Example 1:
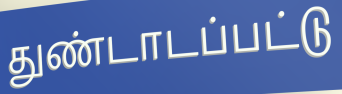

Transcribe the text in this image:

துண்டாடப்பட்டு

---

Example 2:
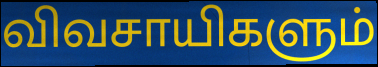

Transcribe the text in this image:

விவசாயிகளும்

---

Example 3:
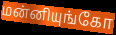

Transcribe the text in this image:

மன்னியுங்கோ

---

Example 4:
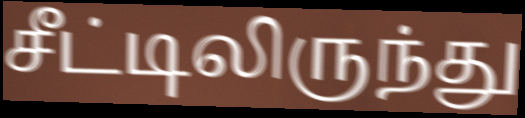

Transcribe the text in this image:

சீட்டிலிருந்து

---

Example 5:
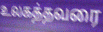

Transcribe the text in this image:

உலகத்தவரை